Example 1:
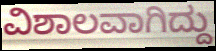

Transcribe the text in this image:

ವಿಶಾಲವಾಗಿದ್ದು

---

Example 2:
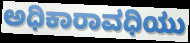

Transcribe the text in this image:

ಅಧಿಕಾರಾವಧಿಯು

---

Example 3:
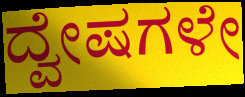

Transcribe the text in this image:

ದ್ವೇಷಗಳೇ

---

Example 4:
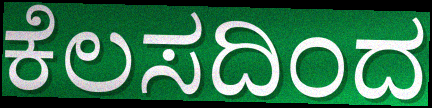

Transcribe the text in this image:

ಕೆಲಸದಿಂದ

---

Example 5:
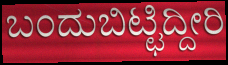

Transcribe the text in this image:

ಬಂದುಬಿಟ್ಟಿದ್ದೀರಿ